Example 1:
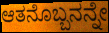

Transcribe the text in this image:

ಆತನೊಬ್ಬನನ್ನೇ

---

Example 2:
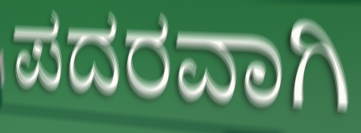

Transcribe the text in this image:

ಪದರವಾಗಿ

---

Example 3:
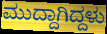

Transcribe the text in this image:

ಮುದ್ದಾಗಿದ್ದಳು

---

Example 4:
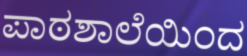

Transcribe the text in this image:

ಪಾಠಶಾಲೆಯಿಂದ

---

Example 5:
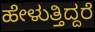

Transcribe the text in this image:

ಹೇಳುತ್ತಿದ್ದರೆ